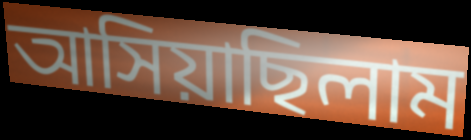
আসিয়াছিলাম